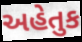
અહેતુક